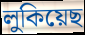
লুকিয়েছ